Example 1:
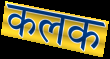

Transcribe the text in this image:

कलक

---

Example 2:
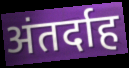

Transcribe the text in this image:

अंतर्दाह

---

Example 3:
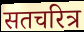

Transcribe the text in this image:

सतचरित्र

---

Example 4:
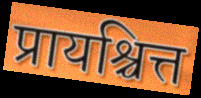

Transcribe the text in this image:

प्रायश्चित्त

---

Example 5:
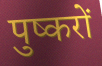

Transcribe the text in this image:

पुष्करों